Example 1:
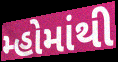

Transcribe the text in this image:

મ્હોમાંથી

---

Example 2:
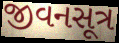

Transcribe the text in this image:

જીવનસૂત્ર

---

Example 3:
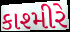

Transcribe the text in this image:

કાશ્મીરે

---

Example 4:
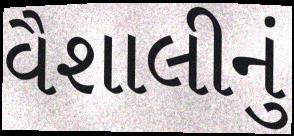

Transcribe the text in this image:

વૈશાલીનું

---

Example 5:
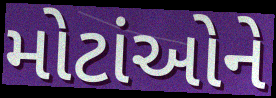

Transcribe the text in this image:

મોટાંઓને